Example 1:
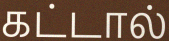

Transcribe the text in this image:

கட்டால்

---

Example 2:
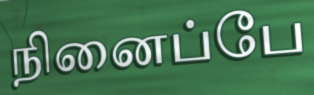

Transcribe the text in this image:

நினைப்பே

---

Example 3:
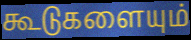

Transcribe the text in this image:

கூடுகளையும்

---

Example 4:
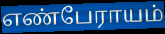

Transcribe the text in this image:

எண்பேராயம்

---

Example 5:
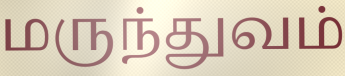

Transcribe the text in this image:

மருந்துவம்